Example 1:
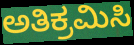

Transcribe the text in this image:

ಅತಿಕ್ರಮಿಸಿ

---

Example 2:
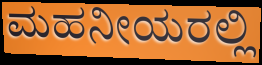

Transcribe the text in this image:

ಮಹನೀಯರಲ್ಲಿ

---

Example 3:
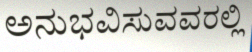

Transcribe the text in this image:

ಅನುಭವಿಸುವವರಲ್ಲಿ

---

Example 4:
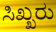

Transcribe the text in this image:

ಸಿಖ್ಖರು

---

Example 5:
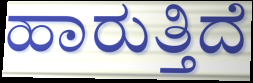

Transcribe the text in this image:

ಹಾರುತ್ತಿದೆ